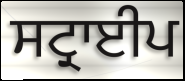
ਸਟ੍ਰਾਈਪ